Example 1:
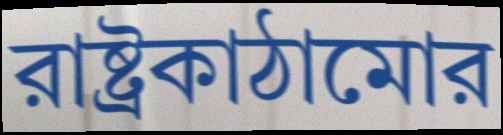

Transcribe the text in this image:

রাষ্ট্রকাঠামোর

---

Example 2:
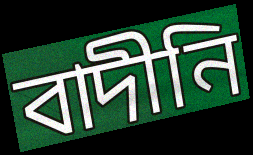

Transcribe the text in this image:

বাদীনি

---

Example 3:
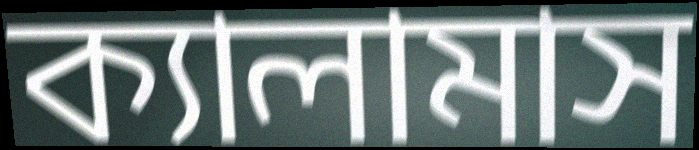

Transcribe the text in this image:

ক্যালামাস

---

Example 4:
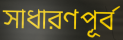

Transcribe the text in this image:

সাধারণপূর্ব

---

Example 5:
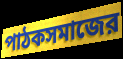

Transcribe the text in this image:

পাঠকসমাজের